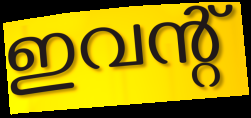
ഇവന്റ്